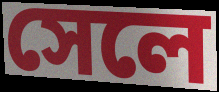
সেলে